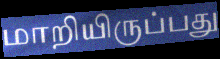
மாறியிருப்பது